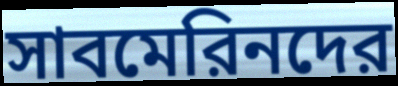
সাবমেরিনদের